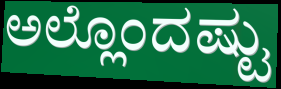
ಅಲ್ಲೊಂದಷ್ಟು